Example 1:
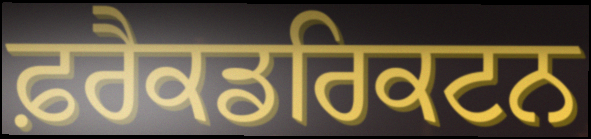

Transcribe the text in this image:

ਫ਼ਰੈਕਡਰਿਕਟਨ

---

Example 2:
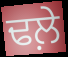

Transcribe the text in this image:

ਢਲ਼ੇ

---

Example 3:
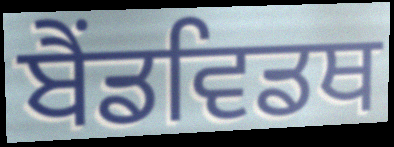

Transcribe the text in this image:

ਬੈਂਡਵਿਡਥ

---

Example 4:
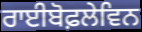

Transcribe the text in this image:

ਰਾਈਬੋਫ਼ਲੇਵਿਨ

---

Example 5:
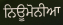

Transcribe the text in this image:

ਨਿਊਮੋਨੀਆ